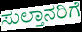
ಸುಲ್ತಾನರಿಗೆ